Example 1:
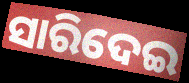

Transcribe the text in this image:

ସାରିଦେଇ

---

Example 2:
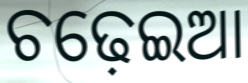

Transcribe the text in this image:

ଚଢ଼େଇଆ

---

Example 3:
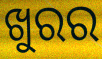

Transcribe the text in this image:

ଖୁରର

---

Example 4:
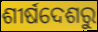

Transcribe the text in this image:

ଶୀର୍ଷଦେଶରୁ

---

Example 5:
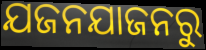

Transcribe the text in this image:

ଯଜନଯାଜନରୁ